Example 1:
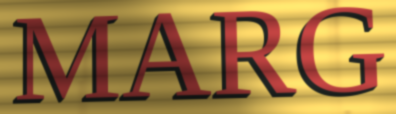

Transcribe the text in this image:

MARG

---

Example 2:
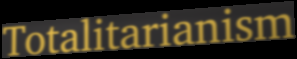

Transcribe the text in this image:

Totalitarianism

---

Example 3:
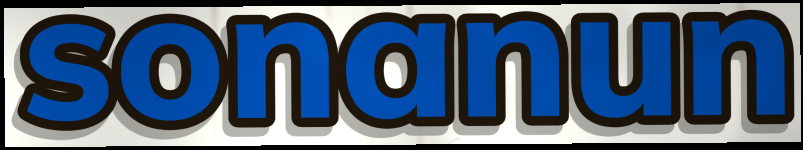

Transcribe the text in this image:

sonanun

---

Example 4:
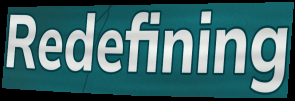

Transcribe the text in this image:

Redefining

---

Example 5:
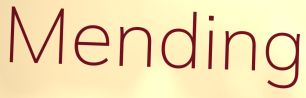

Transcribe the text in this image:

Mending